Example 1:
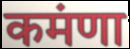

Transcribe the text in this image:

कमंणा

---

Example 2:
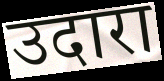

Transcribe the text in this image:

उदारा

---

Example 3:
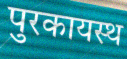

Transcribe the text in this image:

पुरकायस्थ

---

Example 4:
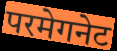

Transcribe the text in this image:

परमेगनेट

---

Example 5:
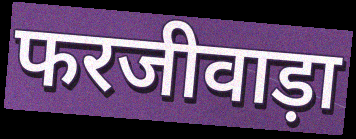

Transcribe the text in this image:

फरजीवाड़ा